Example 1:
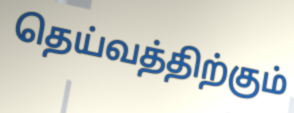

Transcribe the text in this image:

தெய்வத்திற்கும்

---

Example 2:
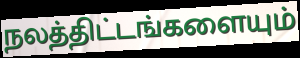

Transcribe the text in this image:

நலத்திட்டங்களையும்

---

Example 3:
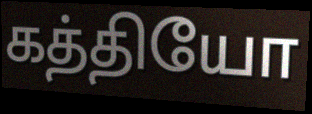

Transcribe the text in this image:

கத்தியோ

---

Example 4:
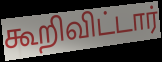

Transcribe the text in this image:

கூறிவிட்டார்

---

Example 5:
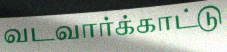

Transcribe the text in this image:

வடவார்க்காட்டு